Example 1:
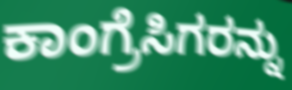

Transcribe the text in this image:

ಕಾಂಗ್ರೆಸಿಗರನ್ನು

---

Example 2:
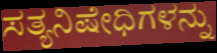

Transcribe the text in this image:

ಸತ್ಯನಿಷೇಧಿಗಳನ್ನು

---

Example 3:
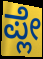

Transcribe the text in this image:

ಪ್ಲೇ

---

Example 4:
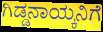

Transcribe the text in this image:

ಗಿಡ್ಡನಾಯ್ಕನಿಗೆ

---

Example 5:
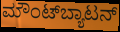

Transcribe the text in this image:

ಮೌಂಟ್‌ಬ್ಯಾಟನ್